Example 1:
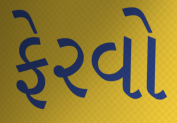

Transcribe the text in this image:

ફેરવો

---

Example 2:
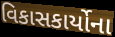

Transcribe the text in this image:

વિકાસકાર્યોના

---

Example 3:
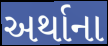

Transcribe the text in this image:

અર્થાના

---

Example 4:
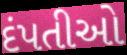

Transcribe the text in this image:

દંપતીઓ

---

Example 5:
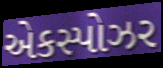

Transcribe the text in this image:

એકસ્પોઝર